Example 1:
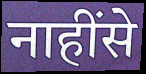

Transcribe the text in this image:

नाहींसे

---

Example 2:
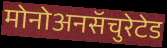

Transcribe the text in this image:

मोनोअनसॅचुरेटेड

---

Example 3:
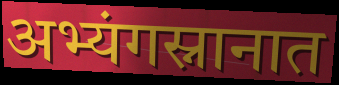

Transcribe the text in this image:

अभ्यंगस्नानात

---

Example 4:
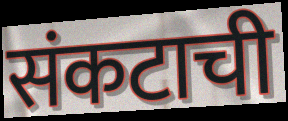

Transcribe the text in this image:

संकटाची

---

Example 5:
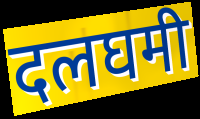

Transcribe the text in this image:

दलघमी